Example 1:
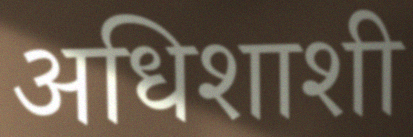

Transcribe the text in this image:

अधिशाशी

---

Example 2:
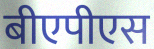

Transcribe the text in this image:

बीएपीएस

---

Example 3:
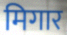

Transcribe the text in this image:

मिगार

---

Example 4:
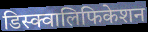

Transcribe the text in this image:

डिस्क्वालिफिकेशन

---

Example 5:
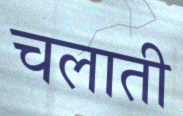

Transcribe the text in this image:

चलाती